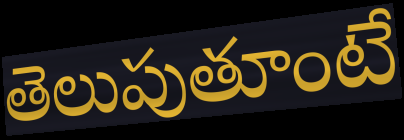
తెలుపుతూంటే